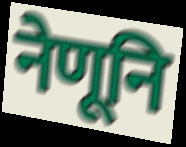
नेणूनि